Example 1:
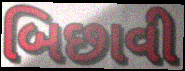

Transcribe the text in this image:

બિછાવી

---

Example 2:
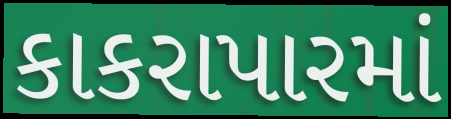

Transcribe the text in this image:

કાકરાપારમાં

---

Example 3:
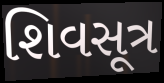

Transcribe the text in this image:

શિવસૂત્ર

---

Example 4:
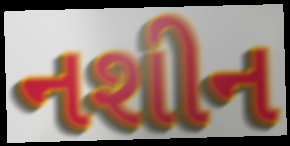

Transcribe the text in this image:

નશીન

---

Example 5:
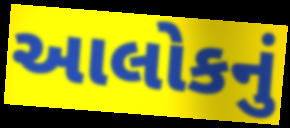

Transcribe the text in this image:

આલોકનું